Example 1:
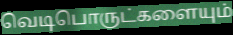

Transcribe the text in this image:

வெடிபொருட்களையும்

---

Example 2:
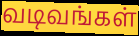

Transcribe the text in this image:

வடிவங்கள்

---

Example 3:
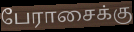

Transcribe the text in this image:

பேராசைக்கு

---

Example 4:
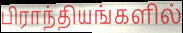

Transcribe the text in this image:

பிராந்தியங்களில்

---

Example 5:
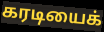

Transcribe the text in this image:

கரடியைக்